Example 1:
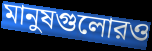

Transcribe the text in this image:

মানুষগুলোরও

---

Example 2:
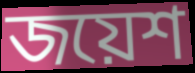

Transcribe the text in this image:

জয়েশ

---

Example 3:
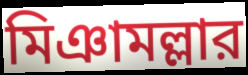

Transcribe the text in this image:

মিঞামল্লার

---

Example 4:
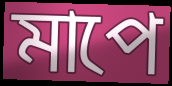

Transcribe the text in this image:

মাপে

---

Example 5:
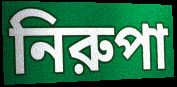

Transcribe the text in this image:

নিরুপা